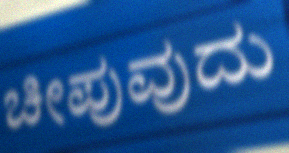
ಚೀಪುವುದು